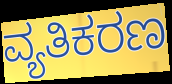
ವ್ಯತಿಕರಣ